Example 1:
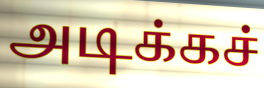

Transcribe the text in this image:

அடிக்கச்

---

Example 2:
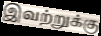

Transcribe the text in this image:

இவற்றுக்கு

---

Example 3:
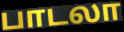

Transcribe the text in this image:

பாடலா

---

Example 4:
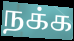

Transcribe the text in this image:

நக்க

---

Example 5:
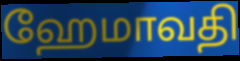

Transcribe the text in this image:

ஹேமாவதி